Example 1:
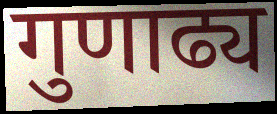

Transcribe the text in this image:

गुणाढ्य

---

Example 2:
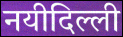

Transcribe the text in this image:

नयीदिल्ली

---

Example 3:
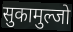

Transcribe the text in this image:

सुकामुल्जो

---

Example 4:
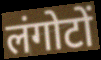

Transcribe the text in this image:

लंगोटों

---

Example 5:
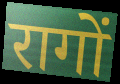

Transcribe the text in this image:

रागों